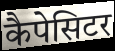
कैपेसिटर